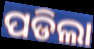
ପଡିଲା